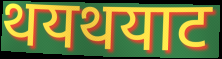
थयथयाट